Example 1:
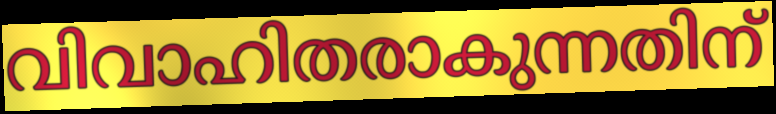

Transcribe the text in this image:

വിവാഹിതരാകുന്നതിന്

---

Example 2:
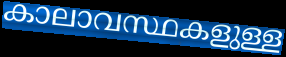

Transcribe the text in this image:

കാലാവസ്ഥകളുള്ള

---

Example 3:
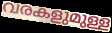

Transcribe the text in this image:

വരകളുമുള്ള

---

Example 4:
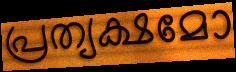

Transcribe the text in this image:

പ്രത്യക്ഷമോ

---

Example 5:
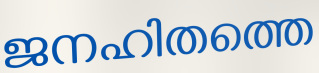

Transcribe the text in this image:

ജനഹിതത്തെ